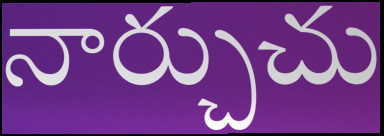
నార్చుచు